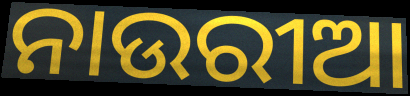
ନାଉରୀଆ